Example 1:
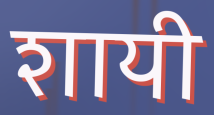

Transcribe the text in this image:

शायी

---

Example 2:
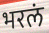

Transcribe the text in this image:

भरलं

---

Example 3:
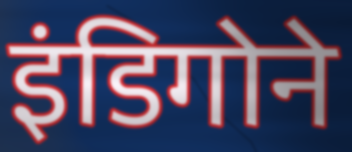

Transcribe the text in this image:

इंडिगोने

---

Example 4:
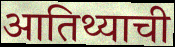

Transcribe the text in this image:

आतिथ्याची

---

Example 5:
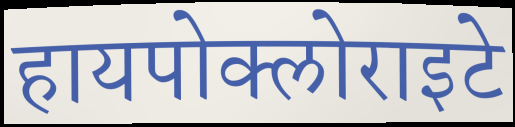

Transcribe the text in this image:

हायपोक्लोराइटे